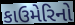
કાઉમેરિનો